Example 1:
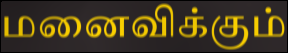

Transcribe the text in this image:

மனைவிக்கும்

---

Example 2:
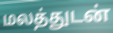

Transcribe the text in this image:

மலத்துடன்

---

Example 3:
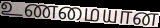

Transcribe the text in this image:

உணமையான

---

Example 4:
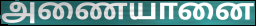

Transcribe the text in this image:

அணையானை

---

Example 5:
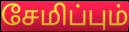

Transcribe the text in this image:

சேமிப்பும்